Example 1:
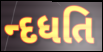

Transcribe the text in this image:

ન્દધતિ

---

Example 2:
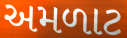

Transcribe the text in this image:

અમળાટ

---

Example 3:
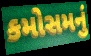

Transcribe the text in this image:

કમોસમનું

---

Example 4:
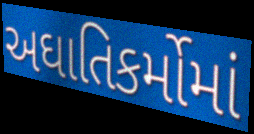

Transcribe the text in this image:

અઘાતિકર્મોમાં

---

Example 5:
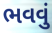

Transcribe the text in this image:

ભવવું